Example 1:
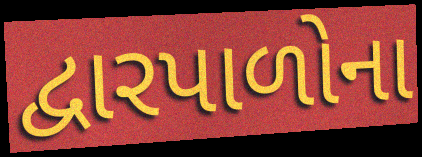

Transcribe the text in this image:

દ્વારપાળોના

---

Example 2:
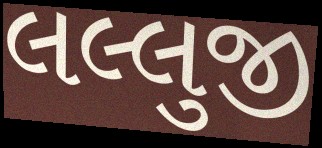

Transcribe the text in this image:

લલ્લુજી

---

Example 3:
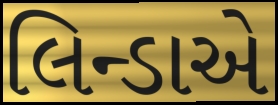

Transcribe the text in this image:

લિન્ડાએ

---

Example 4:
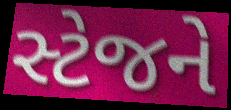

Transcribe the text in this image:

સ્ટેજને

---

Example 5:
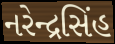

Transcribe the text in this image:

નરેન્દ્રસિંહ